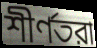
শীর্ণতরা